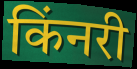
किंनरी